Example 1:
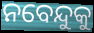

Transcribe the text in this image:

ନବେନ୍ଦୁକୁ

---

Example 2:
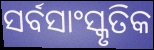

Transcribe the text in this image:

ସର୍ବସାଂସ୍କୃତିକ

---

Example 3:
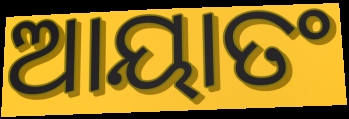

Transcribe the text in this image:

ଆୟାତଂ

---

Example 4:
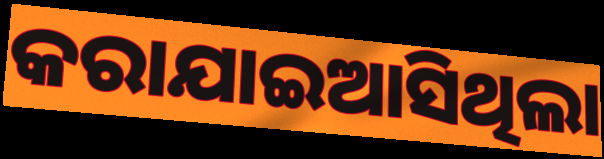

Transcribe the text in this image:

କରାଯାଇଆସିଥିଲା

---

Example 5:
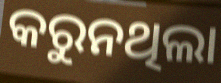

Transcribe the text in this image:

କରୁନଥିଲା